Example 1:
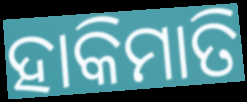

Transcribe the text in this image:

ହାକିମାତି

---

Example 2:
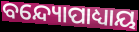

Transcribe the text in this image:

ବନ୍ଦ୍ୟୋପାଧ୍ୟାୟ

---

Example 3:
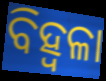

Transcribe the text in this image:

ବିହ୍ଵଳା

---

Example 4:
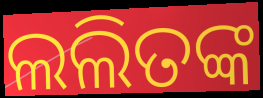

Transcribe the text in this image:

ଲଲିତଙ୍କ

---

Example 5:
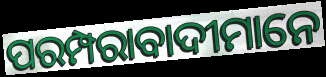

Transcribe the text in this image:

ପରମ୍ପରାବାଦୀମାନେ